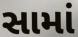
સામાં